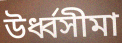
উর্ধ্বসীমা